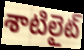
శాటిలైట్